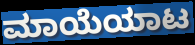
ಮಾಯೆಯಾಟ